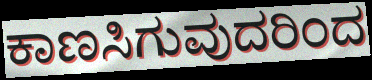
ಕಾಣಸಿಗುವುದರಿಂದ